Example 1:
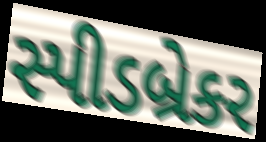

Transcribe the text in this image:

સ્પીડબ્રેકર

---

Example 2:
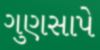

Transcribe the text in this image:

ગુણસાપે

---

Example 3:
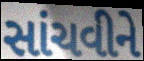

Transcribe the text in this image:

સાંચવીને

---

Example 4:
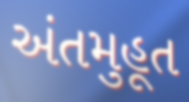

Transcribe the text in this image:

અંતમુહૂત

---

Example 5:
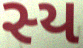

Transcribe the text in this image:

સ્ય